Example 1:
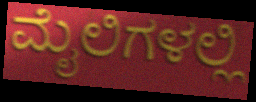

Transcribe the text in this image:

ಮೈಲಿಗಳಲ್ಲಿ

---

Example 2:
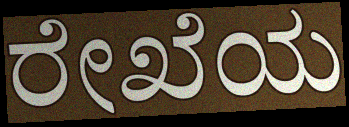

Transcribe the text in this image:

ರೇಖೆಯ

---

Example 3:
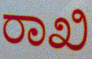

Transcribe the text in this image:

ರಾಖಿ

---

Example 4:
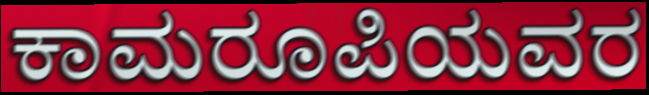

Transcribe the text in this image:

ಕಾಮರೂಪಿಯವರ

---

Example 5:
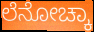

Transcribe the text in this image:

ಲೆನೋಚ್ಕಾ